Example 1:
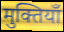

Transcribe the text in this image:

मुक्तियाँ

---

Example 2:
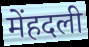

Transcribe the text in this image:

मेंहदली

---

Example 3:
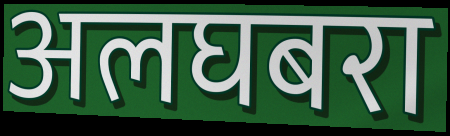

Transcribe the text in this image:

अलघबरा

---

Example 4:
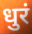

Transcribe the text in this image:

धुरं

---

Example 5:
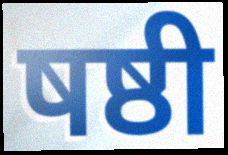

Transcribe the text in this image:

षष्ठी